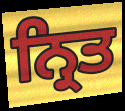
ਨ੍ਰਿਤ